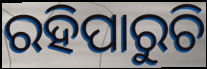
ରହିପାରୁଚି